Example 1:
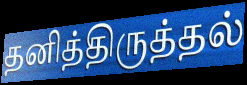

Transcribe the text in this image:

தனித்திருத்தல்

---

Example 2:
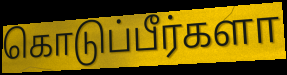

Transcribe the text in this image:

கொடுப்பீர்களா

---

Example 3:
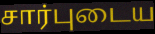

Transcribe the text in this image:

சார்புடைய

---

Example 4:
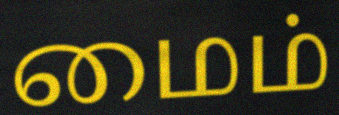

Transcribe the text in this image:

மைம்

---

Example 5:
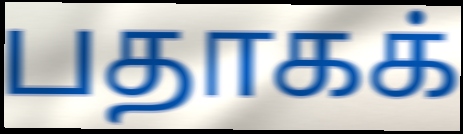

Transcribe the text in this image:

பதாகக்